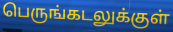
பெருங்கடலுக்குள்